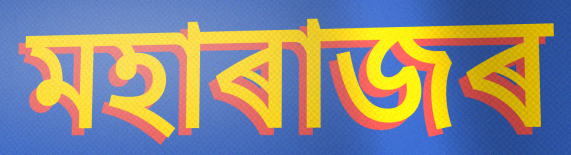
মহাৰাজৰ